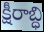
క్షీరాబ్ధి